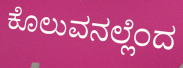
ಕೊಲುವನಲ್ಲೆಂದ